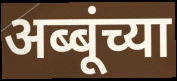
अब्बूंच्या